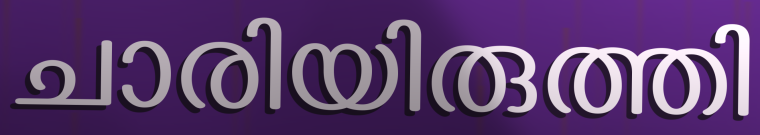
ചാരിയിരുത്തി